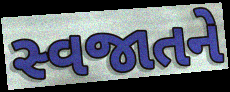
સ્વજાતને